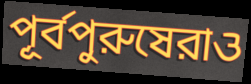
পূর্বপুরুষেরাও